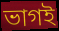
ভাগই